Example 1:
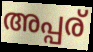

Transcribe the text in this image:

അപ്പര്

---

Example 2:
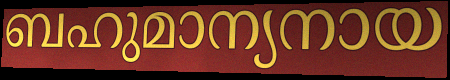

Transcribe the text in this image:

ബഹുമാന്യനായ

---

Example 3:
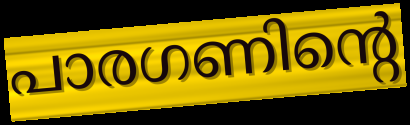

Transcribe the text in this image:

പാരഗണിന്റെ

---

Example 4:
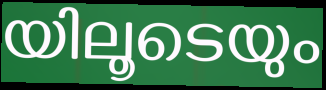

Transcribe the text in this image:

യിലൂടെയും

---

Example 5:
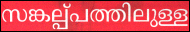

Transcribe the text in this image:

സങ്കല്പ്പത്തിലുള്ള